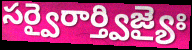
సర్వైరార్త్విజ్యైః